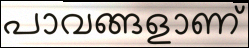
പാവങ്ങളാണ്